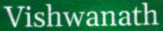
Vishwanath